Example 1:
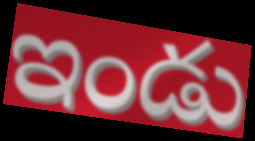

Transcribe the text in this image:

ఇండు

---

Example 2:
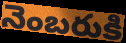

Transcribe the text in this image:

నెంబరుకి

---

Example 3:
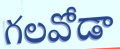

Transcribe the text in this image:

గలవోడా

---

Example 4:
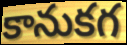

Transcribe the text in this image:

కానుకగ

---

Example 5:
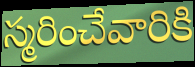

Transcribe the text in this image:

స్మరించేవారికి